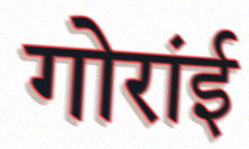
गोरांई